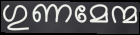
ഗുണമേന്മ